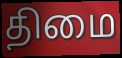
திமை